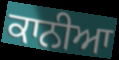
ਕਾਨੀਆ